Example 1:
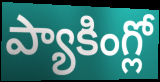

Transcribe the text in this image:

ప్యాకింగ్లో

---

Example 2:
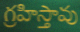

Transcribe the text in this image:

గ్రహిస్తావు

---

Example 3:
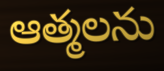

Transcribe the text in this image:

ఆత్మలను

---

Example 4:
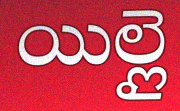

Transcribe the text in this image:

యిల్లై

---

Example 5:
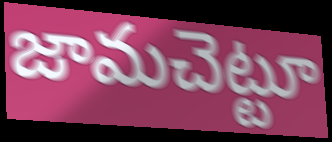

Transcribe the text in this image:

జామచెట్టూ